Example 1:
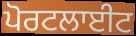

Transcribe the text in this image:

ਪੋਰਟਲਾਈਟ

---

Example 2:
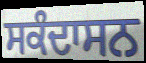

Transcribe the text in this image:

ਸਕੰਦਾਸਨ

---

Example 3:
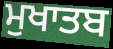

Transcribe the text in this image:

ਮੁਖਾਤਬ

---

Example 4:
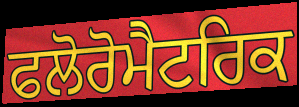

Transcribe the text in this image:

ਫਲੋਰੋਮੈਟਰਿਕ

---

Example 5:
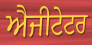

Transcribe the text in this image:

ਐਜੀਟੇਟਰ